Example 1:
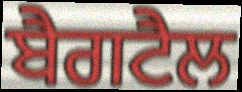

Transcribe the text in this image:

ਬੈਗਟੈਲ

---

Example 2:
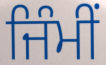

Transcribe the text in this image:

ਜਿੰਮੀਂ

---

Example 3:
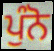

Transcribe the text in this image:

ਪੁੰਨੋ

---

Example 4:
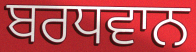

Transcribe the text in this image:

ਬਰਧਵਾਨ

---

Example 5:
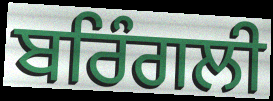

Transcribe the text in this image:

ਬਰਿੰਗਲੀ